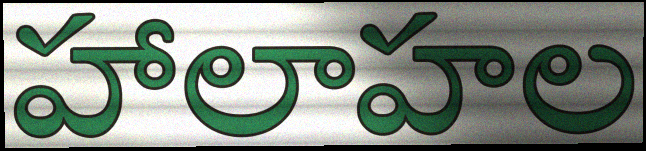
హాలాహల